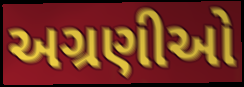
અગ્રણીઓ